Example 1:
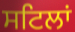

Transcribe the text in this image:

ਸਟਿਲਾਂ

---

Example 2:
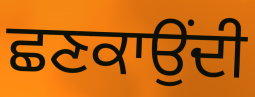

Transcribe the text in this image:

ਛਣਕਾਉਂਦੀ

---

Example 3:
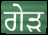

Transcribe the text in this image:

ਗੇੜ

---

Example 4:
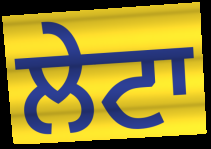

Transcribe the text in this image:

ਲੇਟਾ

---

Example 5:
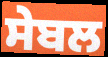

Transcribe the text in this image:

ਸੇਬਲ